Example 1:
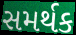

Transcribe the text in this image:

સમર્થક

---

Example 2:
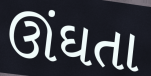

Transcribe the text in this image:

ઊંઘતા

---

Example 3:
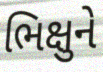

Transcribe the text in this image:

ભિક્ષુને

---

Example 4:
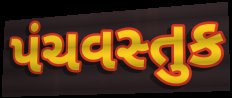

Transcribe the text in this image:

પંચવસ્તુક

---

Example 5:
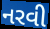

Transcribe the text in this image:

નરવી